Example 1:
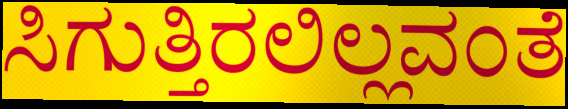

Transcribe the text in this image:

ಸಿಗುತ್ತಿರಲಿಲ್ಲವಂತೆ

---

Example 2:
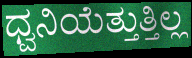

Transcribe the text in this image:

ಧ್ವನಿಯೆತ್ತುತ್ತಿಲ್ಲ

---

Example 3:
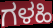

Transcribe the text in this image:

ಗಳಹಿ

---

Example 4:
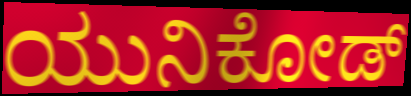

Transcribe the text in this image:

ಯುನಿಕೋಡ್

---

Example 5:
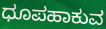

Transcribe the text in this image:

ಧೂಪಹಾಕುವ